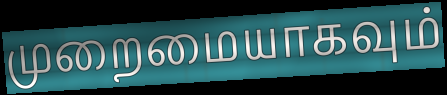
முறைமையாகவும்